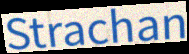
Strachan